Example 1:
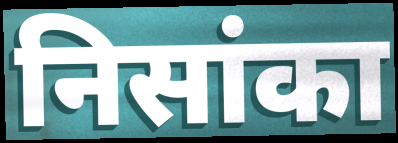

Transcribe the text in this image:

निसांका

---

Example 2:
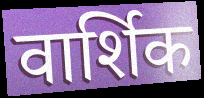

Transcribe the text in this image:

वार्शिक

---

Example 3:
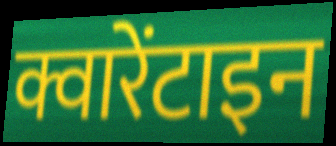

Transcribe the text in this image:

क्वारेंटाइन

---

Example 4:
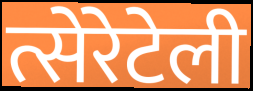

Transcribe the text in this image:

त्सेरेटेली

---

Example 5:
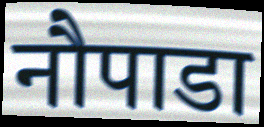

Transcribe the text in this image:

नौपाडा